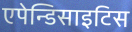
एपेन्डिसाइटिस